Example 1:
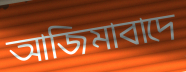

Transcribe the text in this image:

আজিমাবাদে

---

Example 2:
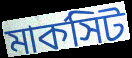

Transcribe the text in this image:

মার্কসিট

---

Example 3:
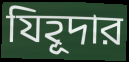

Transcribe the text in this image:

যিহূদার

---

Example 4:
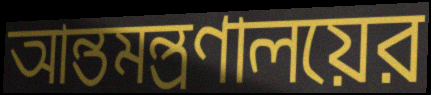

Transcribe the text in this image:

আন্তমন্ত্রণালয়ের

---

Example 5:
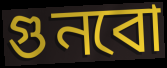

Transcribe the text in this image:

গুনবো